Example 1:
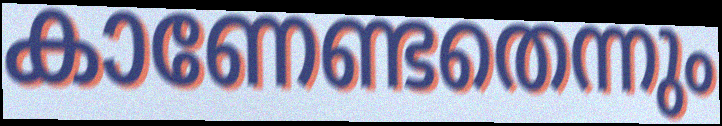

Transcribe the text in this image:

കാണേണ്ടതെന്നും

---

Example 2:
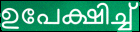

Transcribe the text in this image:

ഉപേക്ഷിച്ച്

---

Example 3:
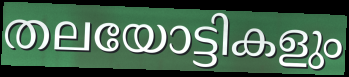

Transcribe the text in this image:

തലയോട്ടികളും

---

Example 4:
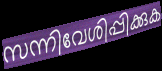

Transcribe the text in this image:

സന്നിവേശിപ്പിക്കുക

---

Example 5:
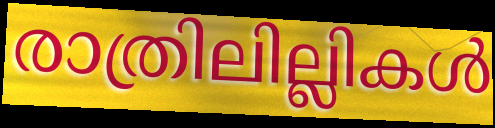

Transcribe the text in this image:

രാത്രിലില്ലികൾ